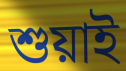
শুয়াই